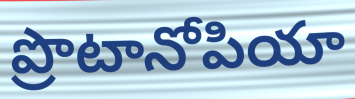
ప్రొటానోపియా